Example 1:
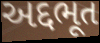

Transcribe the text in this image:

અદ્દભૂત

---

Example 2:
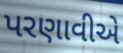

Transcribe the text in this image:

પરણાવીએ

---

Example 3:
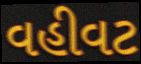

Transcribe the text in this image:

વહીવટ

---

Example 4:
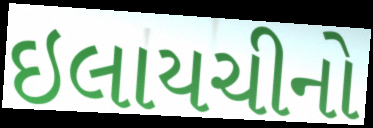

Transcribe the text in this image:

ઇલાયચીનો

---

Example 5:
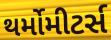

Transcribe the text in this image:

થર્મોમીટર્સ